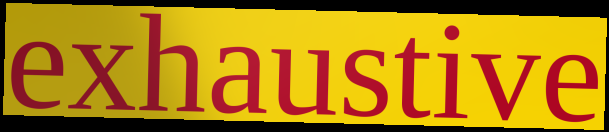
exhaustive